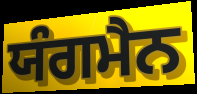
ਯੰਗਮੈਨ